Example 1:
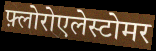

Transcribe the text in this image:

फ़्लोरोएलेस्टोमर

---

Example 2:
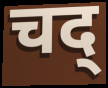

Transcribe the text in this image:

चद्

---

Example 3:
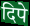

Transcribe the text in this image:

दिपे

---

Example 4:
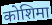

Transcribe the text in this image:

कोशिमा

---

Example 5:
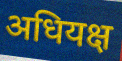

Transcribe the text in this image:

अधियक्ष